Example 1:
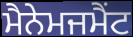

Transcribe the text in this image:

ਮੈਨੇਮਜਮੈਂਟ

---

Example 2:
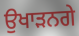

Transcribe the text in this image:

ਉਖਾੜਨਗੇ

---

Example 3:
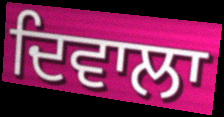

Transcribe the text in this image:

ਦਿਵਾਲਾ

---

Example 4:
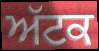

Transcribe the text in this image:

ਅੱਟਕ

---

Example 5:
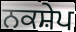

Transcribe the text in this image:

ਨਕਸ਼ੇਪ